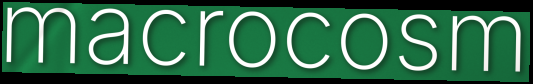
macrocosm